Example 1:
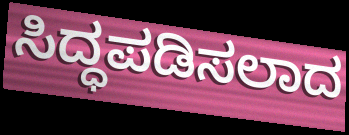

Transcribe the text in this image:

ಸಿದ್ಧಪಡಿಸಲಾದ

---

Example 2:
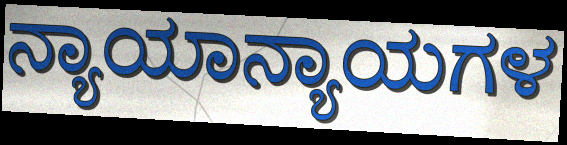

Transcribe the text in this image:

ನ್ಯಾಯಾನ್ಯಾಯಗಳ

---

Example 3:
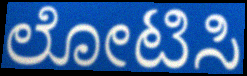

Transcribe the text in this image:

ಲೋಟಿಸಿ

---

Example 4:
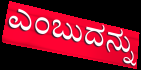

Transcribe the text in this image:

ಎಂಬುದನ್ನು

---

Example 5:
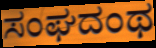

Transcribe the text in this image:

ಸಂಘದಂಥ